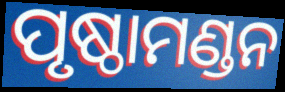
ପୃଷ୍ଠାମଣ୍ଡନ